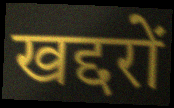
खद्दरों